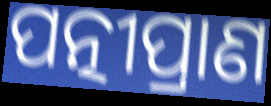
ପତ୍ନୀପ୍ରାଣ